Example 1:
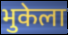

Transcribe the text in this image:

भुकेला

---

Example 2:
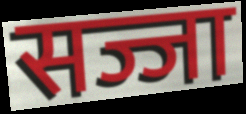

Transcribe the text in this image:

सज्जा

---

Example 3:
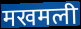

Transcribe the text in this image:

मखमली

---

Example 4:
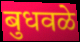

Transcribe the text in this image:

बुधवळे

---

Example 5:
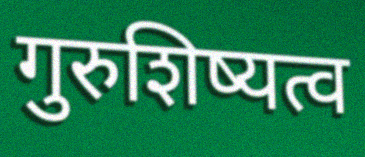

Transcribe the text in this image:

गुरुशिष्यत्व